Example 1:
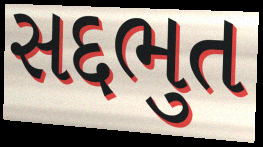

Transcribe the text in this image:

સદ્દભુત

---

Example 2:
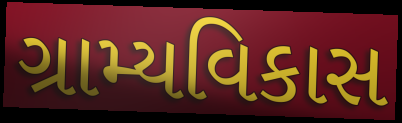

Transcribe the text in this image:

ગ્રામ્યવિકાસ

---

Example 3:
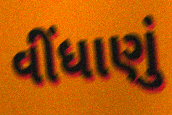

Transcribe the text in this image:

વીંધાણું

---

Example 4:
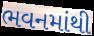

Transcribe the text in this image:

ભવનમાંથી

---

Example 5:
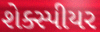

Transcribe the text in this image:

શેક્સ્પીયર